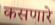
कसणारे